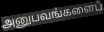
அனுபவங்களைப்